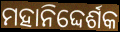
ମହାନିଦ୍ଦେର୍ଶକ